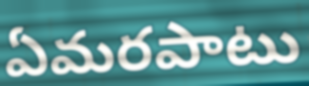
ఏమరపాటు